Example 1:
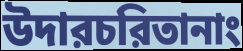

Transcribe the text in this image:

উদারচরিতানাং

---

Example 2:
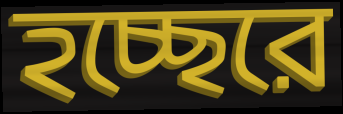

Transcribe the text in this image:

হচ্ছেরে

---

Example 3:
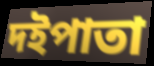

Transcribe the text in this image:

দইপাতা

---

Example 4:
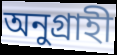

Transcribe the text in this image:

অনুগ্রাহী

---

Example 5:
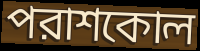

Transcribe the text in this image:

পরাশকোল